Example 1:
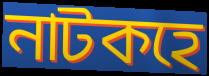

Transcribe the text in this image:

নাটকহে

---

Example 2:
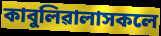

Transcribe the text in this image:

কাবুলিৱালাসকলে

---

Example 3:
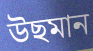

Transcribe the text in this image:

উছমান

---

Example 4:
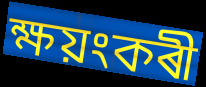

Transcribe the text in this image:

ক্ষয়ংকৰী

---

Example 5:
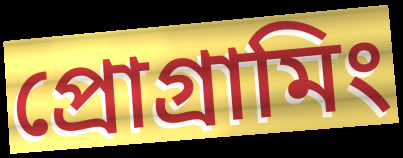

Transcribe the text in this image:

প্ৰোগ্ৰামিং